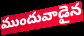
ముందువాడైన